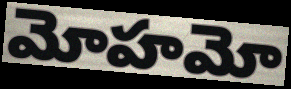
మోహమో